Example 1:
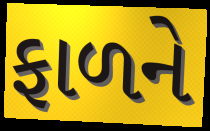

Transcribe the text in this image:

ફાળને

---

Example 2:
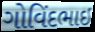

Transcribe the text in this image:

ગોવિંદભાઇ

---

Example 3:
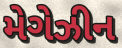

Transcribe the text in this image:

મેગેઝીન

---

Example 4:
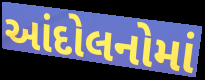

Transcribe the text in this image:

આંદોલનોમાં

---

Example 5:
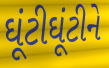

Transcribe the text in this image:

ઘૂંટીઘૂંટીને